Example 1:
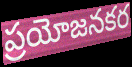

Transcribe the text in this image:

ప్రయోజనకర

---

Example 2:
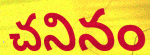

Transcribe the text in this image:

చనినం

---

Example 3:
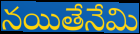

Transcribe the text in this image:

నయితేనేమి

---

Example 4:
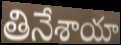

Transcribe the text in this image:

తినేశాయా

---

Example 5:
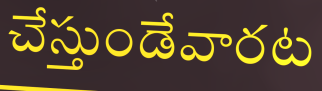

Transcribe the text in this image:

చేస్తుండేవారట